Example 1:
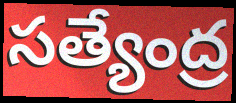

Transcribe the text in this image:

సత్యేంద్ర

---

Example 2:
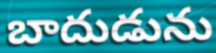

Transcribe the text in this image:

బాదుడును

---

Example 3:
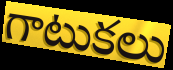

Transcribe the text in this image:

గాటుకలు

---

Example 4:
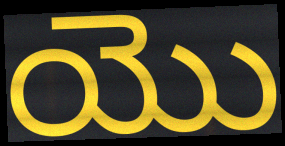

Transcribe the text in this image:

యొ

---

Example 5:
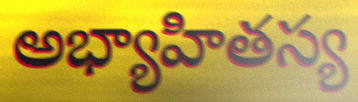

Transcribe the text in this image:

అభ్యాహితస్య